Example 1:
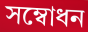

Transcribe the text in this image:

সম্বোধন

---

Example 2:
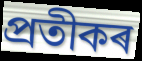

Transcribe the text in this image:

প্ৰতীকৰ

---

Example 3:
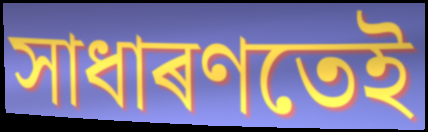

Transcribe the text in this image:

সাধাৰণতেই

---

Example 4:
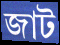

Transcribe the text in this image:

জাট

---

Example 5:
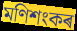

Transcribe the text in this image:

মণিশংকৰ